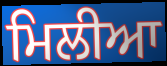
ਮਿਲੀਆ